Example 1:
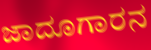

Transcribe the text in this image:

ಜಾದೂಗಾರನ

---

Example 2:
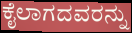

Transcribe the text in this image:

ಕೈಲಾಗದವರನ್ನು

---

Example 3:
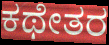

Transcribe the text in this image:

ಕಥೇತರ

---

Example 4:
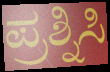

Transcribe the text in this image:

ಪ್ರಶ್ನಿಸಿ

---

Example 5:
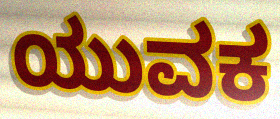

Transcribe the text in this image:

ಯುವಕ